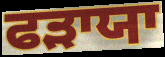
ਫੜਾਯਾ